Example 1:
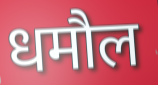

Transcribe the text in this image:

धमौल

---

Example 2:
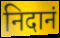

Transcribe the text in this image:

निदानं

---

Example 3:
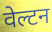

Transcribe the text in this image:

वेल्टन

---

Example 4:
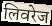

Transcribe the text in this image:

लिवरेज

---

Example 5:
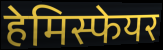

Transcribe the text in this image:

हेमिस्फेयर